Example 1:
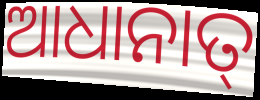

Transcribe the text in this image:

ଆଧାନାତ୍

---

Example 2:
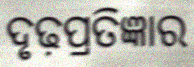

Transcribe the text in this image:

ଦୃଢ଼ପ୍ରତିଜ୍ଞାର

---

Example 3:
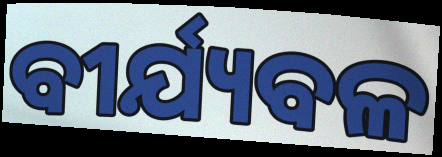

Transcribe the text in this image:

ବୀର୍ଯ୍ୟବଳ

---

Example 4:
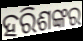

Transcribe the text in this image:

ହରିଶଙ୍କର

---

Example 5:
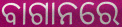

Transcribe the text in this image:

ବାଗାନରେ